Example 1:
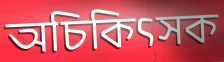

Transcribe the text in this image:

অচিকিৎসক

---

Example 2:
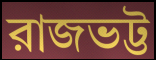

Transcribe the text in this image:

রাজভট্ট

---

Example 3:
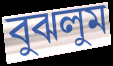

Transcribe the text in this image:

বুঝলুম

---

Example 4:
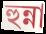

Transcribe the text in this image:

হুন্না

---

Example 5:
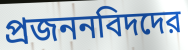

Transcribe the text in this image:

প্রজননবিদদের